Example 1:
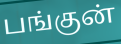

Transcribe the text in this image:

பங்குன்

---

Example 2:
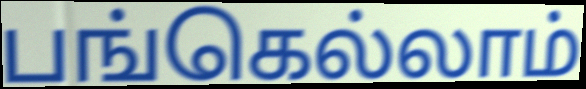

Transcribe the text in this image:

பங்கெல்லாம்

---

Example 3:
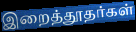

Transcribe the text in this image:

இறைத்தூதர்கள்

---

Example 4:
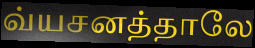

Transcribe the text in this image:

வ்யசனத்தாலே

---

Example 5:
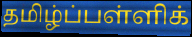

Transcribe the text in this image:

தமிழ்ப்பள்ளிக்